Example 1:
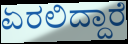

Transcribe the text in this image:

ಏರಲಿದ್ದಾರೆ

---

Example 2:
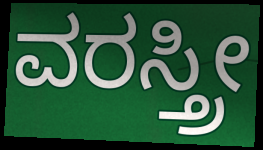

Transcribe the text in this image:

ವರಸ್ತ್ರೀ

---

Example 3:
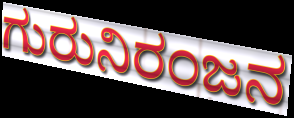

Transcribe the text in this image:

ಗುರುನಿರಂಜನ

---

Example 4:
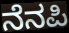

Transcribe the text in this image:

ನೆನಪಿ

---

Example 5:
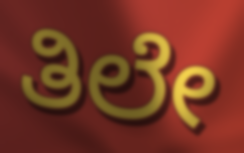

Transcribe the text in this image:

ತಿಲೇ